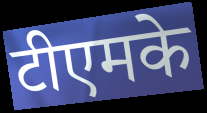
टीएमके